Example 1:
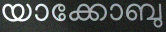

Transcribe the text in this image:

യാക്കോബു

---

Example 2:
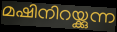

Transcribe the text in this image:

മഷിനിറയ്ക്കുന്ന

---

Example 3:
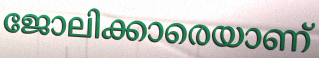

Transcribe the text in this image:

ജോലിക്കാരെയാണ്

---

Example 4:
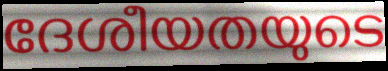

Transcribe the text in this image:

ദേശീയതയുടെ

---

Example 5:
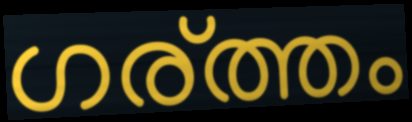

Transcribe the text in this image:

ഗര്ത്തം